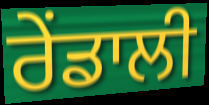
ਰੇਂਡਾਲੀ